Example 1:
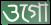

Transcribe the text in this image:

ওগো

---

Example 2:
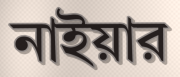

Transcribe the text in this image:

নাইয়ার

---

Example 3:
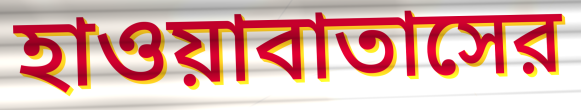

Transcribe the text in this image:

হাওয়াবাতাসের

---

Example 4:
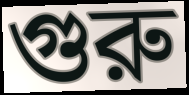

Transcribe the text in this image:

গুরু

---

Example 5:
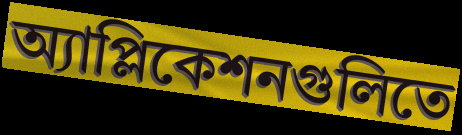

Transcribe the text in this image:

অ্যাপ্লিকেশনগুলিতে